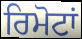
ਰਿਮੋਟਾਂ